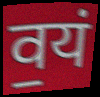
व॒यं